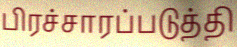
பிரச்சாரப்படுத்தி